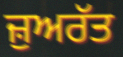
ਜ਼ੁਅਰੱਤ